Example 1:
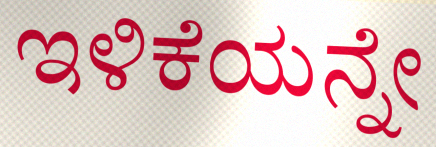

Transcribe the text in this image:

ಇಳಿಕೆಯನ್ನೇ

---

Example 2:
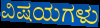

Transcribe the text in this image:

ವಿಷಯಗಳು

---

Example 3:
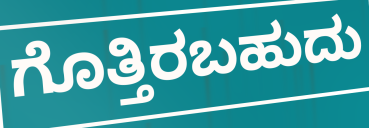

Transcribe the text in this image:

ಗೊತ್ತಿರಬಹುದು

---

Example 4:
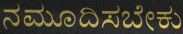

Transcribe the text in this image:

ನಮೂದಿಸಬೇಕು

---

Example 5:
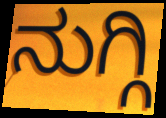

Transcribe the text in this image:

ನುಗ್ಗಿ